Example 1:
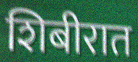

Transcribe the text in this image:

शिबीरात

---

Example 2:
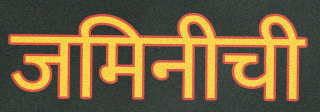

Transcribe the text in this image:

जमिनीची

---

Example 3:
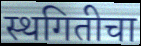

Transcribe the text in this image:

स्थगितीचा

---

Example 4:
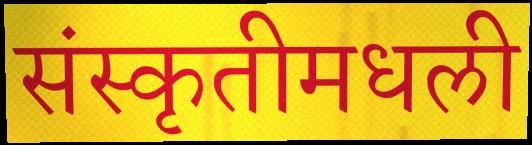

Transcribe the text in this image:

संस्कृतीमधली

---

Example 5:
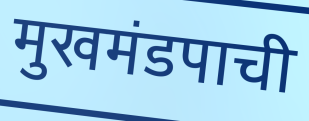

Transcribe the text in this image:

मुखमंडपाची